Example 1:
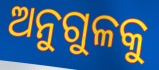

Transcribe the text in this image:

ଅନୁଗୁଳକୁ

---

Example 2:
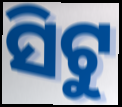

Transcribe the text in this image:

ସିଟୁ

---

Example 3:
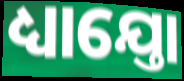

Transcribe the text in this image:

ଧ୍ୟାଯ୍ତୋ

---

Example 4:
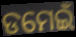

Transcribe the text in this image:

ଡମେଇଁ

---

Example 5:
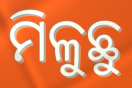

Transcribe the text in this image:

ମିଳୁଛୁ